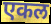
एकल